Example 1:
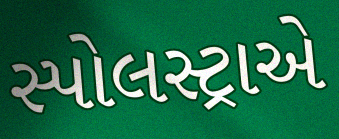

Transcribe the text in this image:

સ્પોલસ્ટ્રાએ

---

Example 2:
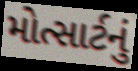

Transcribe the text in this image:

મોત્સાર્ટનું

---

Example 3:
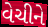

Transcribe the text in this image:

વેચીને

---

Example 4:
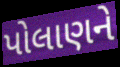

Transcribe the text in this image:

પોલાણને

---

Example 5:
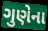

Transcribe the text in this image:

ગુણેના